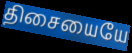
திசையையே